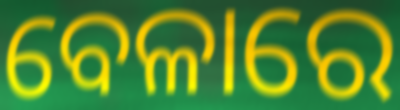
ବେଳାରେ